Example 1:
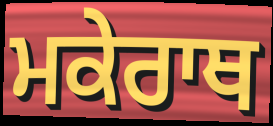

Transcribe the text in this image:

ਮਕੇਰਾਥ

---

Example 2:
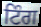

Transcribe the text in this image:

ਟਿੰਗ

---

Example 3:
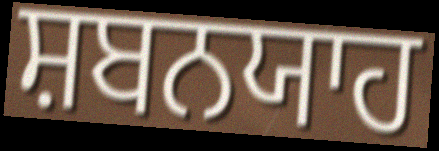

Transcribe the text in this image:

ਸ਼ਬਨਯਾਹ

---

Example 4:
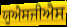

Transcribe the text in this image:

ਯੂਐਸਜੀਐਸ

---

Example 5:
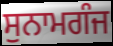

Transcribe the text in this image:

ਸੁਨਾਮਗੰਜ